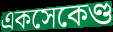
একসেকেণ্ড